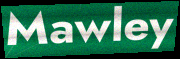
Mawley